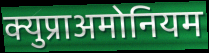
क्युप्राअमोनियम